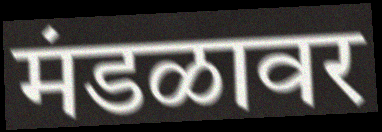
मंडळावर